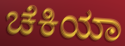
ಚೆಕಿಯಾ